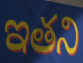
ఇతని